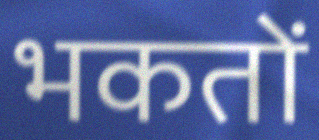
भकतों